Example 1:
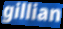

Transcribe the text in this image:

gillian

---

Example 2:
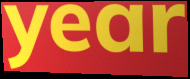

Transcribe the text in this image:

year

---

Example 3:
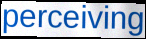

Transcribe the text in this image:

perceiving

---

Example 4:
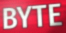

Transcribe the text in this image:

BYTE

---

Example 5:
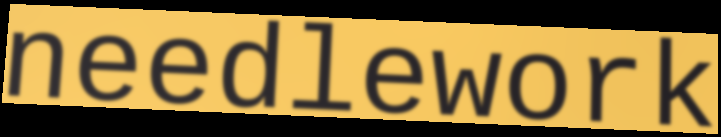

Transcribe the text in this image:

needlework